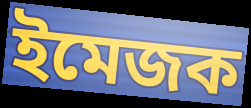
ইমেজক